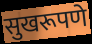
सुखरूपणे